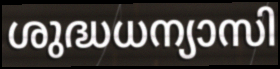
ശുദ്ധധന്യാസി